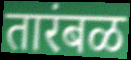
तारंबळ